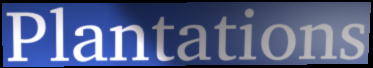
Plantations